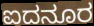
ಐದನೂರ